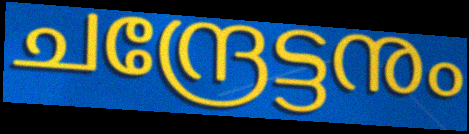
ചന്ദ്രേട്ടനും